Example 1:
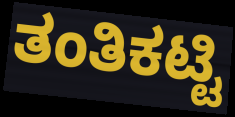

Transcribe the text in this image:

ತಂತಿಕಟ್ಟಿ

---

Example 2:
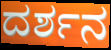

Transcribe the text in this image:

ದರ್ಶನ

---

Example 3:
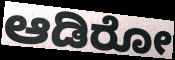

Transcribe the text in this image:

ಆಡಿರೋ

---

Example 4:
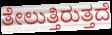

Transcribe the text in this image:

ತೇಲುತ್ತಿರುತ್ತದೆ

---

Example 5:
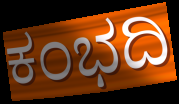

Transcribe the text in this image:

ಕಂಭದಿ